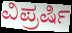
ವಿಪ್ರರ್ಷಿ